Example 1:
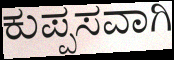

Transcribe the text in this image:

ಕುಪ್ಪಸವಾಗಿ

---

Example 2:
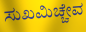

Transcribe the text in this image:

ಸುಖಮಿಚ್ಚೇವ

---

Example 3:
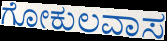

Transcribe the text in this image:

ಗೋಕುಲವಾಸ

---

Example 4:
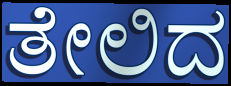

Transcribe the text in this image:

ತೇಲಿದ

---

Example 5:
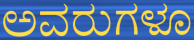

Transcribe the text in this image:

ಅವರುಗಳೂ